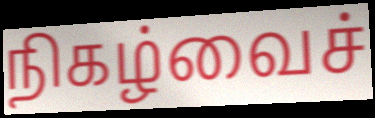
நிகழ்வைச்